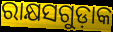
ରାକ୍ଷସଗୁଡ଼ାକ